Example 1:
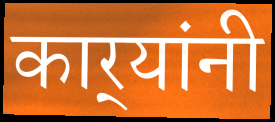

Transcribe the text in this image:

कार्यांनी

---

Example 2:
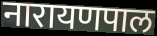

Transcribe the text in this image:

नारायणपाल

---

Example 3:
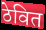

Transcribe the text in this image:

ठेवित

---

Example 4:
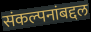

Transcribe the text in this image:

संकल्पनांबद्दल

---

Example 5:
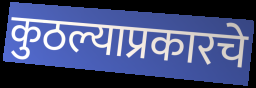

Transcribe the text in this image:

कुठल्याप्रकारचे